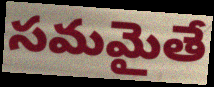
సమమైతే